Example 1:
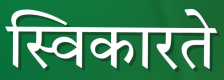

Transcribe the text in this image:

स्विकारते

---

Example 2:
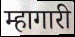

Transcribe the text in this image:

म्हागारी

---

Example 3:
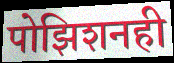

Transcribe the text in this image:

पोझिशनही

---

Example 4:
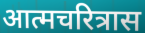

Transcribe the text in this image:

आत्मचरित्रास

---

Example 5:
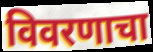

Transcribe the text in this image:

विवरणाचा